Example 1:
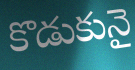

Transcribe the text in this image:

కొడుకునై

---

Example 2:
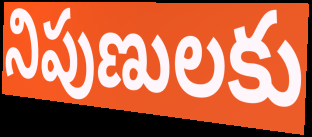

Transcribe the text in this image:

నిపుణులకు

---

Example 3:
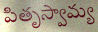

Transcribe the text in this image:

పితృస్వామ్య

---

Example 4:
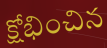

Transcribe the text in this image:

క్షోభించిన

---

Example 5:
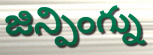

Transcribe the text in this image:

జిన్పింగ్ను